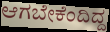
ಆಗಬೇಕೆಂದಿದ್ದ